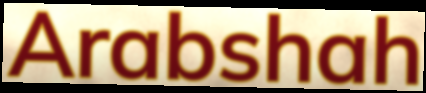
Arabshah